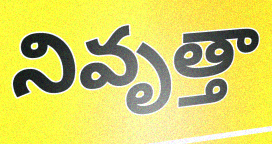
నివృత్తా